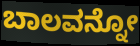
ಬಾಲವನ್ನೋ